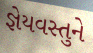
જ્ઞેયવસ્તુને